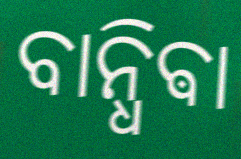
ବାନ୍ଧିଵା